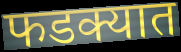
फडक्यात